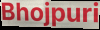
Bhojpuri